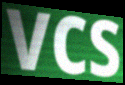
vcs